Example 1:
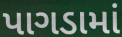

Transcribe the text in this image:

પાગડામાં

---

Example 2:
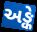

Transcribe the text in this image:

અઙ્કે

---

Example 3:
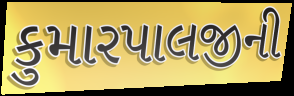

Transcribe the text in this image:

કુમારપાલજીની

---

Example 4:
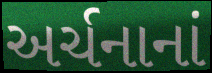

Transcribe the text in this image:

અર્ચનાનાં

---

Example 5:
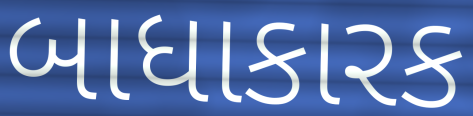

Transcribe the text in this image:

બાધાકારક